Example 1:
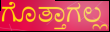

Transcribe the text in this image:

ಗೊತ್ತಾಗಲ್ಲ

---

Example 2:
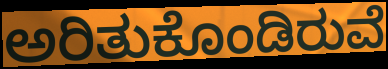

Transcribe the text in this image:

ಅರಿತುಕೊಂಡಿರುವೆ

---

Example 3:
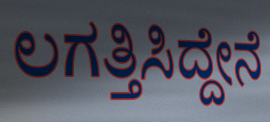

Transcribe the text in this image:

ಲಗತ್ತಿಸಿದ್ದೇನೆ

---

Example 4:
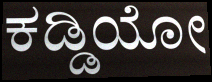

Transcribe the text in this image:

ಕಡ್ಡಿಯೋ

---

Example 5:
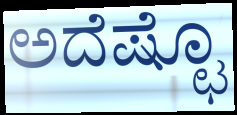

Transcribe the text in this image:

ಅದೆಷ್ಟೊ